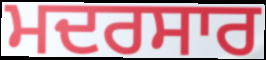
ਮਦਰਸਾਰ